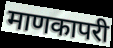
माणकापरी